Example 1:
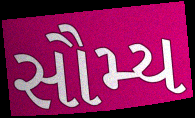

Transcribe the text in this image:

સૌમ્ય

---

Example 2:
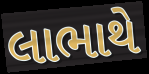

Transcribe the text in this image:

લાભાથે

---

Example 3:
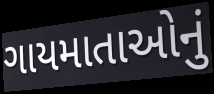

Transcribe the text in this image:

ગાયમાતાઓનું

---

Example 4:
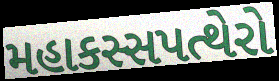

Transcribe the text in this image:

મહાકસ્સપત્થેરો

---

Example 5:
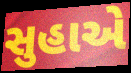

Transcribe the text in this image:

સુહાએ